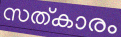
സത്കാരം